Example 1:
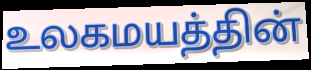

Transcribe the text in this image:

உலகமயத்தின்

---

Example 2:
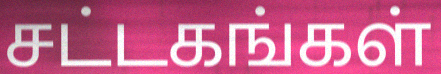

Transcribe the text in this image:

சட்டகங்கள்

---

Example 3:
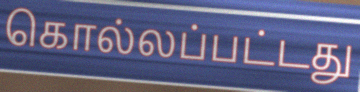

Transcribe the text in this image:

கொல்லப்பட்டது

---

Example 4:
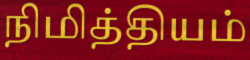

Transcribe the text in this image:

நிமித்தியம்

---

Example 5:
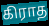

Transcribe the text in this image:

கிராத